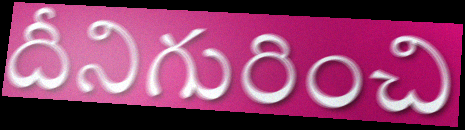
దీనిగురించి